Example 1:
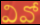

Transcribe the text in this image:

వివో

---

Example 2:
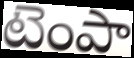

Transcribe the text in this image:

టెంపా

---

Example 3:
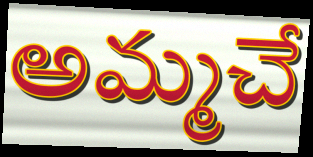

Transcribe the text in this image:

అమ్మచే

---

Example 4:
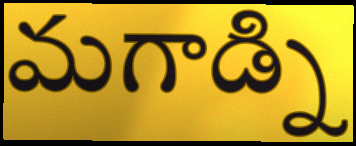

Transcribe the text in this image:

మగాడ్ని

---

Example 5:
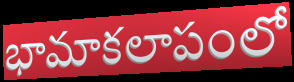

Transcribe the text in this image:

భామాకలాపంలో